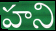
హని